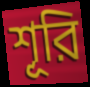
শূরি